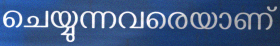
ചെയ്യുന്നവരെയാണ്